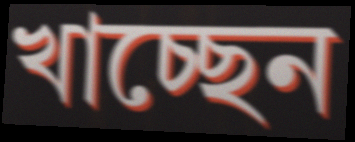
খাচ্ছেন